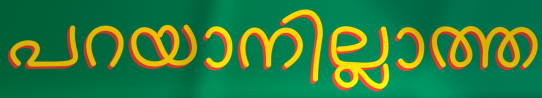
പറയാനില്ലാത്ത